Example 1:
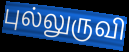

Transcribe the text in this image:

புல்லுருவி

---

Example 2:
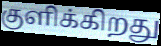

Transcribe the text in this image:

குளிக்கிறது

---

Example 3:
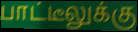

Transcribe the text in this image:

பாட்டீலுக்கு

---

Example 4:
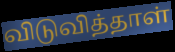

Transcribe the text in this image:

விடுவித்தாள்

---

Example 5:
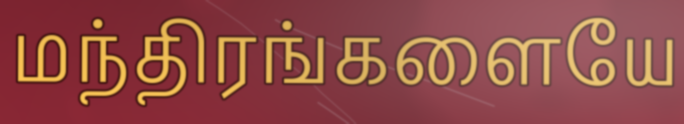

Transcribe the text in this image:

மந்திரங்களையே